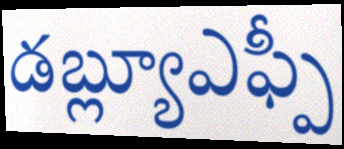
డబ్ల్యూఎఫ్పీ